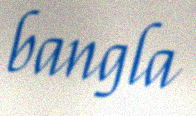
bangla